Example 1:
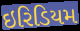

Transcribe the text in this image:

ઇરિડિયમ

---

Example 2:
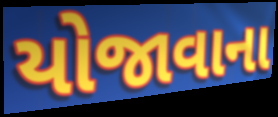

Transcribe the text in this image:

યોજાવાના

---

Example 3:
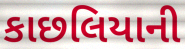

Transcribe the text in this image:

કાછલિયાની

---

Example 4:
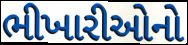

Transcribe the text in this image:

ભીખારીઓનો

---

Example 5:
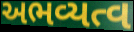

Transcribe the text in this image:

અભવ્યત્વ